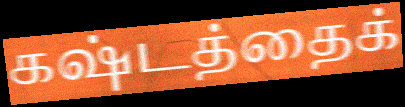
கஷ்டத்தைக்